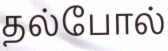
தல்போல்